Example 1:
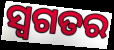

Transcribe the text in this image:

ସ୍ୱଗତର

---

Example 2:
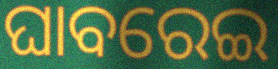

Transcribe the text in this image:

ଘାବରେଇ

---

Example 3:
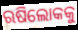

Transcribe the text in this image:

ଋଷିଲୋକକୁ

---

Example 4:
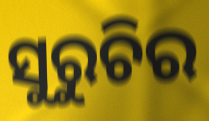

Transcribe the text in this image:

ସୁରୁଚିର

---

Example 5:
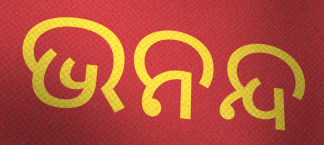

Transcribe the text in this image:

ଭନନ୍ଦ